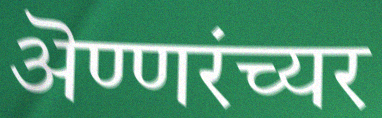
ऄण्णरंच्यर